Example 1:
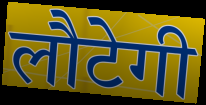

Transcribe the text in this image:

लौटेगी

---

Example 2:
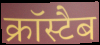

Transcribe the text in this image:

क्रॉस्टैब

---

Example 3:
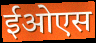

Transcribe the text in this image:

ईओएस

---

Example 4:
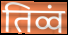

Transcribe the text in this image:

तिव्वं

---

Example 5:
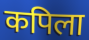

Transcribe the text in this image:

कपिला